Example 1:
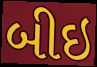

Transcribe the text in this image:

બીઇ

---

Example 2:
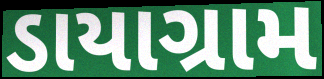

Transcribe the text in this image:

ડાયાગ્રામ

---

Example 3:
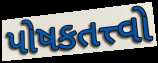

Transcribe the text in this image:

પોષકતત્ત્વો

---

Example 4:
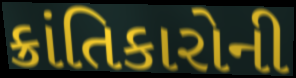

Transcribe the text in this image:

ક્રાંતિકારોની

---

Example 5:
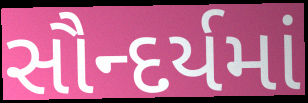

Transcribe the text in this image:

સૌન્દર્યમાં